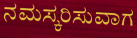
ನಮಸ್ಕರಿಸುವಾಗ